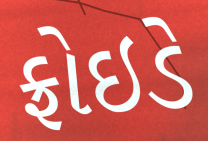
ફ્રોઇડે